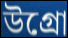
উগ্রো